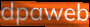
dpaweb